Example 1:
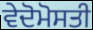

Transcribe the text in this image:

ਵੇਦੋਮੋਸਤੀ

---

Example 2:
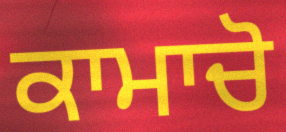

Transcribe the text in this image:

ਕਾਮਾਚੋ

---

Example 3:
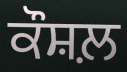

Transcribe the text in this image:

ਕੌਸ਼ਲ਼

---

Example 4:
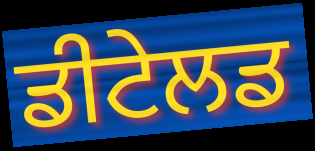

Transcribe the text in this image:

ਡੀਟੇਲਡ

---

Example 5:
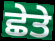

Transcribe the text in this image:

ਛੇਤੇ